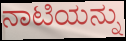
ನಾಟಿಯನ್ನು